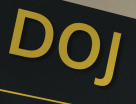
DOJ